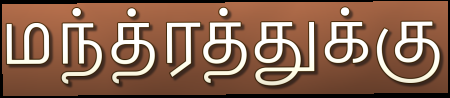
மந்த்ரத்துக்கு